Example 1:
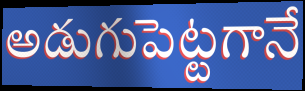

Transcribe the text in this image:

అడుగుపెట్టగానే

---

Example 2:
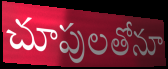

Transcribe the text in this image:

చూపులతోనూ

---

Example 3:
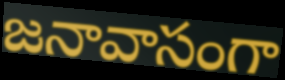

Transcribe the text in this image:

జనావాసంగా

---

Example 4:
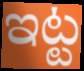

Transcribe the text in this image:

ఇట్ట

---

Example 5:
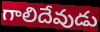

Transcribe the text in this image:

గాలిదేవుడు